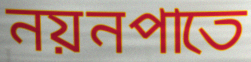
নয়নপাতে